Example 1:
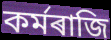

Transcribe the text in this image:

কৰ্মৰাজি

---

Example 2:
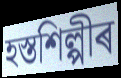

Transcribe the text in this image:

হস্তশিল্পীৰ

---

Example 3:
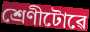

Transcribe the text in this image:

শ্ৰেণীটোৱে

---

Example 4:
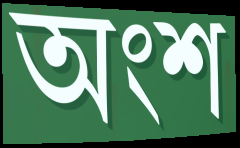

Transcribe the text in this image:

অংশ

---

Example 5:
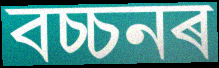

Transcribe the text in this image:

বচ্চনৰ